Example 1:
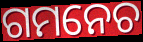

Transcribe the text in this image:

ଗମନେଚ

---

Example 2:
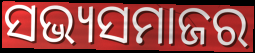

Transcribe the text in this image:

ସଭ୍ୟସମାଜର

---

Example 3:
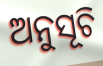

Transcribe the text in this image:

ଅନୁସୂଚି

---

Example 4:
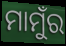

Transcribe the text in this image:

ମାମୁଁର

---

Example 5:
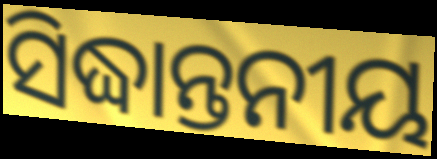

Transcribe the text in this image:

ସିଦ୍ଧାନ୍ତନୀୟ